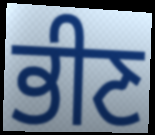
ਭੀਣ